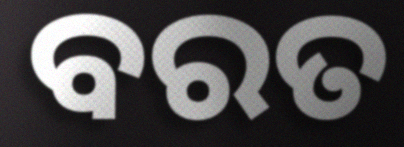
ବରତ